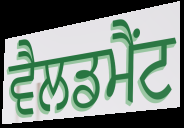
ਵੈਲਡਮੈਂਟ